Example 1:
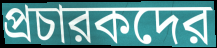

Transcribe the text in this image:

প্রচারকদের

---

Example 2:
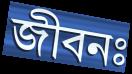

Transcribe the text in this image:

জীবনঃ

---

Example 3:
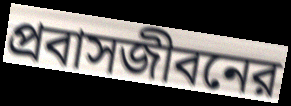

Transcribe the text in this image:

প্রবাসজীবনের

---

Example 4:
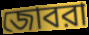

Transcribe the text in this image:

জোবরা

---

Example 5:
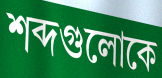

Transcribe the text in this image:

শব্দগুলোকে